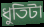
ধুতিটা